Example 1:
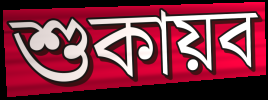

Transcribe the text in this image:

শুকায়ব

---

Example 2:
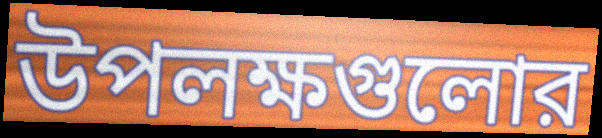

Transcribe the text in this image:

উপলক্ষগুলোর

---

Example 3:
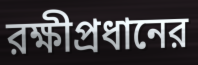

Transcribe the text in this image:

রক্ষীপ্রধানের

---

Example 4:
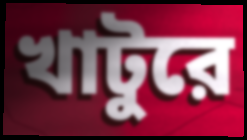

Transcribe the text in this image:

খাটুরে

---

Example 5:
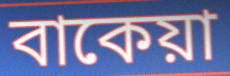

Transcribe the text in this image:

বাকেয়া